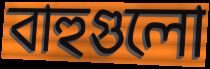
বাহুগুলো